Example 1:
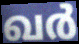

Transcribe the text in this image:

ഖർ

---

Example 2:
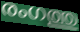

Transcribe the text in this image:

രംഗത്തു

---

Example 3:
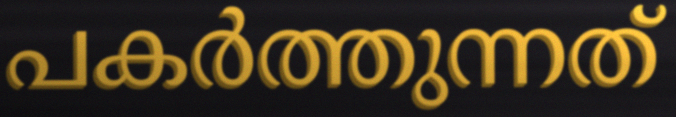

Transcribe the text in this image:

പകർത്തുന്നത്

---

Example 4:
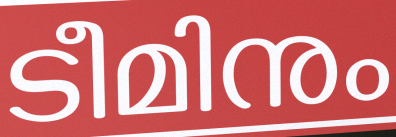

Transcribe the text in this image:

ടീമിനും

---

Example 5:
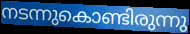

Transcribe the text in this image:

നടന്നുകൊണ്ടിരുന്നു